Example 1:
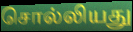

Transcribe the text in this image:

சொல்லியது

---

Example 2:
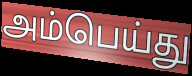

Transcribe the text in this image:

அம்பெய்து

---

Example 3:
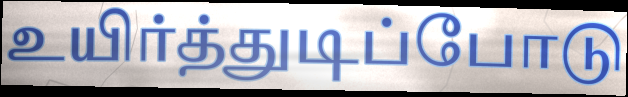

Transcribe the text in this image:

உயிர்த்துடிப்போடு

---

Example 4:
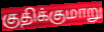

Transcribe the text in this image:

குதிக்குமாறு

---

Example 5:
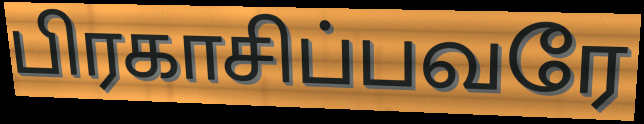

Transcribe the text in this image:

பிரகாசிப்பவரே